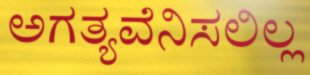
ಅಗತ್ಯವೆನಿಸಲಿಲ್ಲ